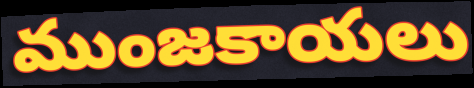
ముంజకాయలు